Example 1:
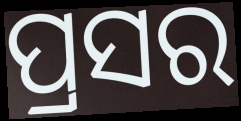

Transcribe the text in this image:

ପ୍ରସର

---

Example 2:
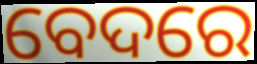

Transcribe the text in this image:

ବେଦରେ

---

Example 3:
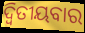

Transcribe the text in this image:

ଦ୍ୱିତୀୟବାର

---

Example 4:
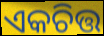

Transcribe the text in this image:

ଏକଚିତ୍ତ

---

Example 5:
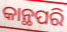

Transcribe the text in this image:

କାନ୍ଥପରି